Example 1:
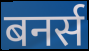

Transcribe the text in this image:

बनर्स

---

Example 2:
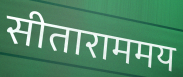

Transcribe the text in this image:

सीताराममय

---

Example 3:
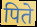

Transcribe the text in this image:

पिते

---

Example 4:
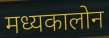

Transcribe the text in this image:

मध्यकालोन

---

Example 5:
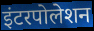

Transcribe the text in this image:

इंटरपोलेशन